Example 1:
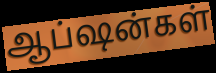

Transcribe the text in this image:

ஆப்ஷன்கள்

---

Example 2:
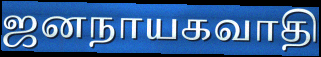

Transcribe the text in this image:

ஜனநாயகவாதி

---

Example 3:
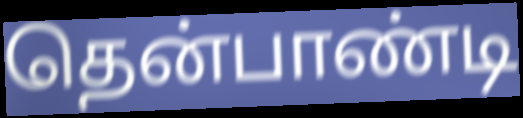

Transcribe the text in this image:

தென்பாண்டி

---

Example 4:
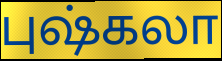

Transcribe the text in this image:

புஷ்கலா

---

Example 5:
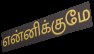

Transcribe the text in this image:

என்னிக்குமே